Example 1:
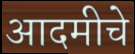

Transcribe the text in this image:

आदमीचे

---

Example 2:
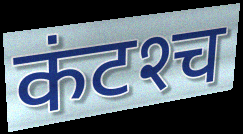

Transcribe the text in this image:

कंटश्च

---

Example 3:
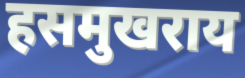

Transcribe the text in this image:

हसमुखराय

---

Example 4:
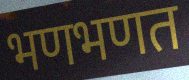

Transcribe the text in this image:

भणभणत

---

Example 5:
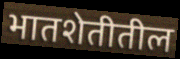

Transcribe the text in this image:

भातशेतीतील